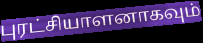
புரட்சியாளனாகவும்